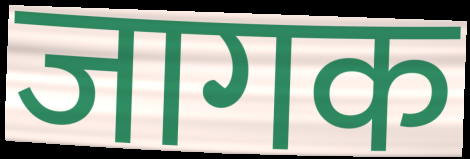
जागक